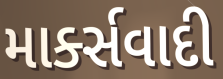
માર્ક્સવાદી